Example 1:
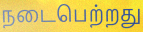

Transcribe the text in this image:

நடைபெற்றது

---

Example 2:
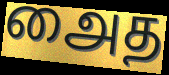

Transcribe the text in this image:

அைத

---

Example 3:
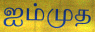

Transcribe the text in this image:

ஐம்முத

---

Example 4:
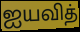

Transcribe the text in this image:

ஐயவித்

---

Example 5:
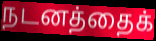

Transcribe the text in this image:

நடனத்தைக்